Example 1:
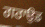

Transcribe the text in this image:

ਗਰਾਉਡ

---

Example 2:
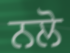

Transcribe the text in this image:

ਨਲੋ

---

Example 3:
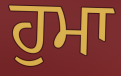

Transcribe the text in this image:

ਹੁਮਾ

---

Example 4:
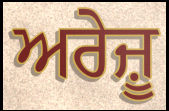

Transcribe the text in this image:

ਅਰੇਜ਼ੂ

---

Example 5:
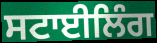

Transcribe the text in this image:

ਸਟਾਈਲਿੰਗ